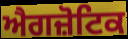
ਐਗਜ਼ੋਟਿਕ